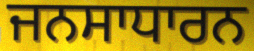
ਜਨਸਾਧਾਰਨ